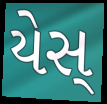
યેસ્